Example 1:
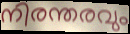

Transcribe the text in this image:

നിരന്തരവും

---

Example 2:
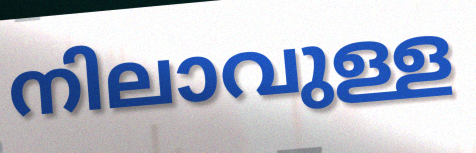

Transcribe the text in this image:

നിലാവുള്ള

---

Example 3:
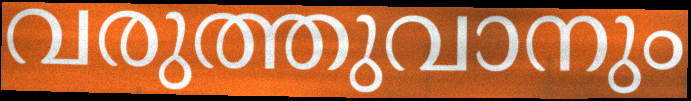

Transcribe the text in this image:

വരുത്തുവാനും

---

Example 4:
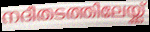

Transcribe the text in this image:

നദീതടത്തിലേയ്ക്ക്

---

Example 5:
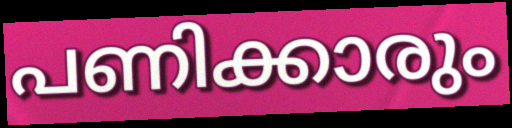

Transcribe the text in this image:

പണിക്കാരും